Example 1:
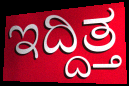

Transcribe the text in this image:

ಇದ್ದಿತ್ತ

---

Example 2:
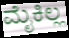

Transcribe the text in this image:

ಮೈಕಿಲ್ಲ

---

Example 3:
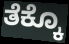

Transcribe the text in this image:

ತೆಕ್ಕೊ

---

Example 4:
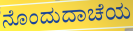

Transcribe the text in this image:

ನೊಂದುದಾಚೆಯ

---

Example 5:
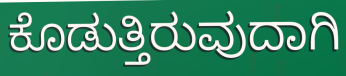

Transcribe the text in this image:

ಕೊಡುತ್ತಿರುವುದಾಗಿ